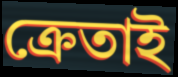
ক্রেতাই